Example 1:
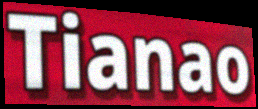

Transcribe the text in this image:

Tianao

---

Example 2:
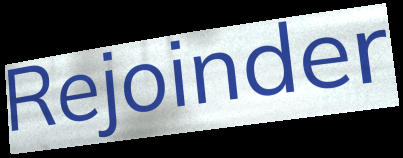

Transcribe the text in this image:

Rejoinder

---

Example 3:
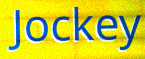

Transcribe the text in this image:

Jockey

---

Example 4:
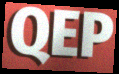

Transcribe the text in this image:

QEP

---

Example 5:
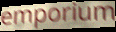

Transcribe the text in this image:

emporium